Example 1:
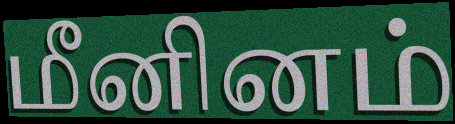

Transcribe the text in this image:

மீனினம்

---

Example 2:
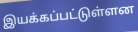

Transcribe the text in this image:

இயக்கப்பட்டுள்ளன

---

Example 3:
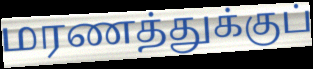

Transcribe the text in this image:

மரணத்துக்குப்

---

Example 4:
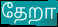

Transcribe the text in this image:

தேறா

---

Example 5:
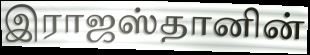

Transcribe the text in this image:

இராஜஸ்தானின்